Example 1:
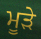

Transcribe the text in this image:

ਮੂੜੇ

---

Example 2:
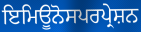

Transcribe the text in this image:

ਇਮਿਊਨੋਸਪਰਪ੍ਰੇਸ਼ਨ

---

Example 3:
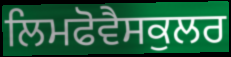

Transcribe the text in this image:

ਲਿਮਫੋਵੈਸਕੁਲਰ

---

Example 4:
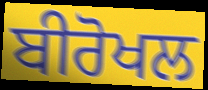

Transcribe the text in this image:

ਬੀਰੋਖਲ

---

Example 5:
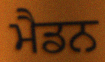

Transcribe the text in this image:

ਮੈਡਨ